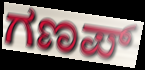
ಗಣಪ್